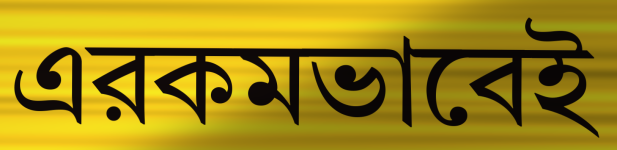
এরকমভাবেই